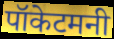
पॉकेटमनी